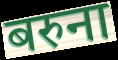
बरुना